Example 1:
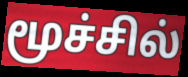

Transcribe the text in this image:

மூச்சில்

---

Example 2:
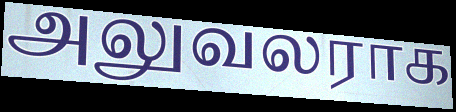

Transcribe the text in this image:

அலுவலராக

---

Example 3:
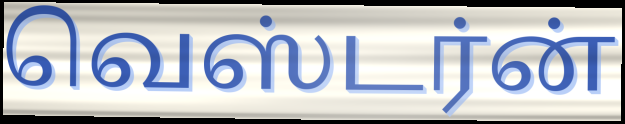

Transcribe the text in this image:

வெஸ்டர்ன்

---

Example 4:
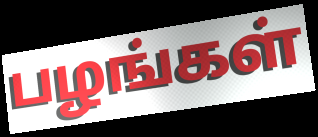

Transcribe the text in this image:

பழங்கள்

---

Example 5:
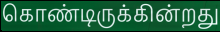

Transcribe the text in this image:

கொண்டிருக்கின்றது